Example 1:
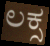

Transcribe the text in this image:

ಲಕ್ಸ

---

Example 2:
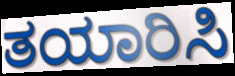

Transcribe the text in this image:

ತಯಾರಿಸಿ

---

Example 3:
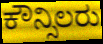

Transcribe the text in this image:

ಕೌನ್ಸಿಲರು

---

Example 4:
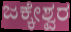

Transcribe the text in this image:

ಜಕ್ಕೇಶ್ವರ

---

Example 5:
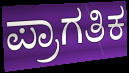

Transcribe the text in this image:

ಪ್ರಾಗತಿಕ